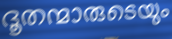
ദൂതന്മാരുടെയും